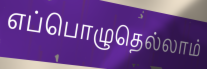
எப்பொழுதெல்லாம்